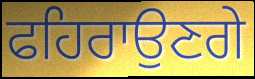
ਫਹਿਰਾਉਣਗੇ